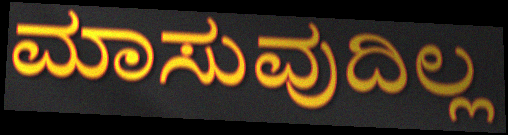
ಮಾಸುವುದಿಲ್ಲ